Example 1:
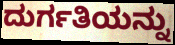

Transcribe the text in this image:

ದುರ್ಗತಿಯನ್ನು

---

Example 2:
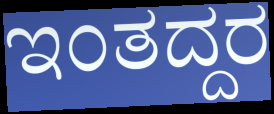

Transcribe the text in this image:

ಇಂತದ್ದರ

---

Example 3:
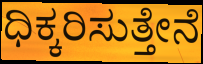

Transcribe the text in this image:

ಧಿಕ್ಕರಿಸುತ್ತೇನೆ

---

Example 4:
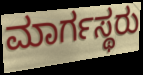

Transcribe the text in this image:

ಮಾರ್ಗಸ್ಥರು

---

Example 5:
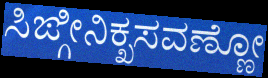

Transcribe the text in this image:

ಸಿಙ್ಗೀನಿಕ್ಖಸವಣ್ಣೋ